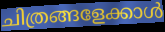
ചിത്രങ്ങളേക്കാൾ